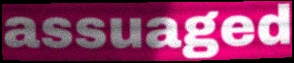
assuaged